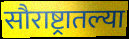
सौराष्ट्रातल्या